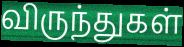
விருந்துகள்